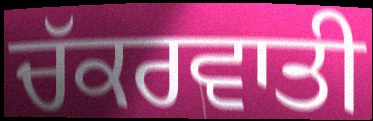
ਚੱਕਰਵਾਤੀ